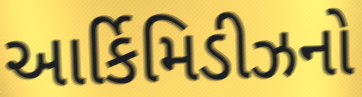
આર્કિમિડીઝનો